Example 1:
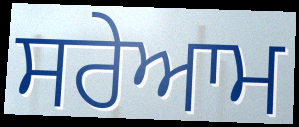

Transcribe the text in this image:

ਸਰੇਆਮ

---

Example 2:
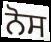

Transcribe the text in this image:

ਨੋਸ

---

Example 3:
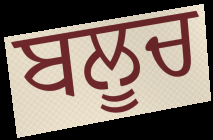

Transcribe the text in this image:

ਬਲੂਚ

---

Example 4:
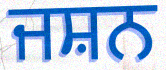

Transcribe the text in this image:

ਜਸ਼ਨ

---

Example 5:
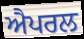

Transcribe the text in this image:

ਐਪਰਲ